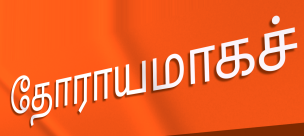
தோராயமாகச்